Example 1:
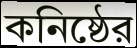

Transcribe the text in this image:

কনিষ্ঠের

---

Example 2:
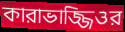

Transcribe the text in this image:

কারাভাজ্জিওর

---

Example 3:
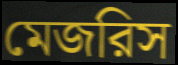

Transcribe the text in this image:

মেজরিস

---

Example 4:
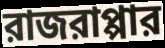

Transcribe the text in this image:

রাজরাপ্পার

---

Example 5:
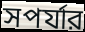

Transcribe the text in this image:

সপর্যার